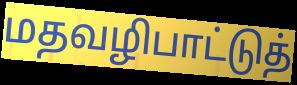
மதவழிபாட்டுத்